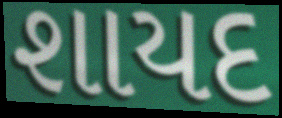
શાયદ